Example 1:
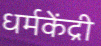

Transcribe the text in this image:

धर्मकेंद्री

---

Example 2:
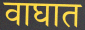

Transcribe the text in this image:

वाघात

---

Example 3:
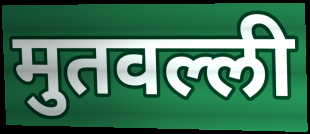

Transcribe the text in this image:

मुतवल्ली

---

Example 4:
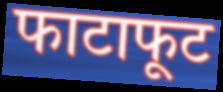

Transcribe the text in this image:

फाटाफूट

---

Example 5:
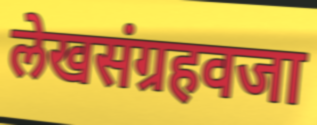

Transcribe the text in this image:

लेखसंग्रहवजा